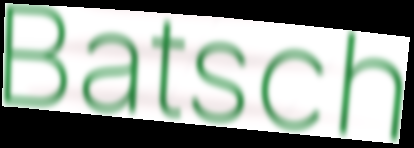
Batsch